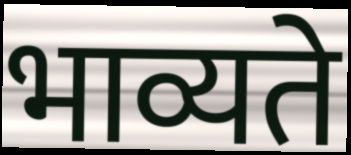
भाव्यते